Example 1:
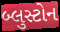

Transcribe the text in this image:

બ્લુસ્ટોન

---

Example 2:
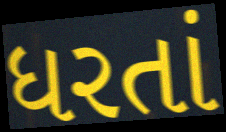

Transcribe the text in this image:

ધરતાં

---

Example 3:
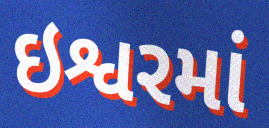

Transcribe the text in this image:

ઇશ્વરમાં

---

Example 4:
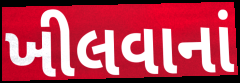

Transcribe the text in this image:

ખીલવાનાં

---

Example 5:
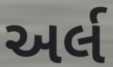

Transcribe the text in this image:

અર્લ